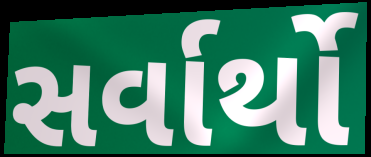
સર્વાર્થો